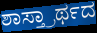
ಶಾಸ್ತ್ರಾರ್ಥದ